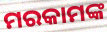
ମରକାମଙ୍କ